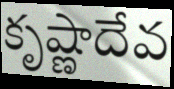
కృష్ణాదేవ